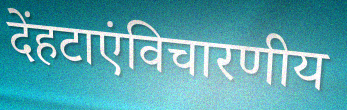
देंहटाएंविचारणीय